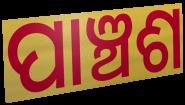
ପାଞ୍ଚଶ